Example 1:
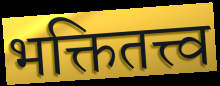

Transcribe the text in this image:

भक्तितत्त्व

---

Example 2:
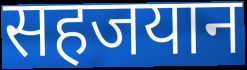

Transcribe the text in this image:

सहजयान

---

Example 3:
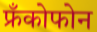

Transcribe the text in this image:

फ्रँकोफोन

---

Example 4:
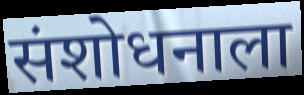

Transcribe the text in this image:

संशोधनाला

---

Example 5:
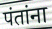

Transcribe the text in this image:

पंतांना